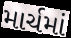
માર્ચમાં